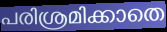
പരിശ്രമിക്കാതെ